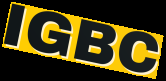
IGBC